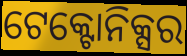
ଟେକ୍ଟୋନିକ୍ସର